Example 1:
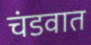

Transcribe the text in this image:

चंडवात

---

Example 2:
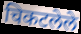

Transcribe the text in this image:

चिकटलेले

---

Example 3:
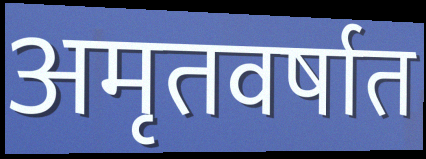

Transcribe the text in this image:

अमृतवर्षात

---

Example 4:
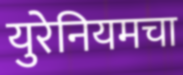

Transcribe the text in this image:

युरेनियमचा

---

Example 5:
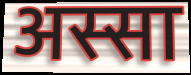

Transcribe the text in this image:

अस्सा